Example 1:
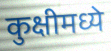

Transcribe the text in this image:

कुक्षीमध्ये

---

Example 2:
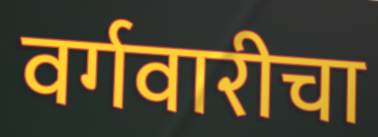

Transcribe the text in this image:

वर्गवारीचा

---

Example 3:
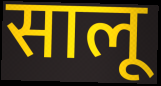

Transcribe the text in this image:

सालू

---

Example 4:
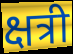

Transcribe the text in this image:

क्षत्री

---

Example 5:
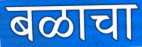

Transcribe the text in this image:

बळाचा